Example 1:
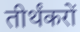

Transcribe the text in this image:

तीर्थंकरों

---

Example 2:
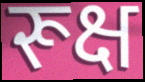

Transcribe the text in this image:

रूक्ष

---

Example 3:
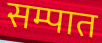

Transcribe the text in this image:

सम्पात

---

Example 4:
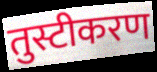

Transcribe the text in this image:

तुस्टीकरण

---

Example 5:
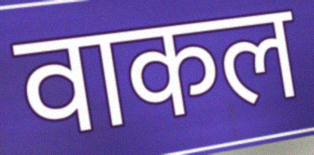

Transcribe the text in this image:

वाकल